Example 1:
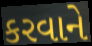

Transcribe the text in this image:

કરવાને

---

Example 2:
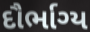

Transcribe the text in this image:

દૌર્ભાગ્ય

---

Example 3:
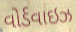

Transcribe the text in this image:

વોર્ડવાઇઝ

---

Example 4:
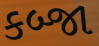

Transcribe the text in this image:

કબ્જા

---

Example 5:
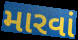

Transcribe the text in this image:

મારવાં